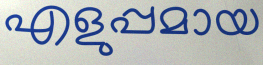
എളുപ്പമായ